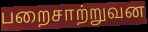
பறைசாற்றுவன